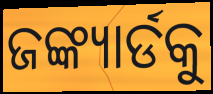
ଜଙ୍କ୍ୟାର୍ଡକୁ